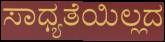
ಸಾಧ್ಯತೆಯಿಲ್ಲದ